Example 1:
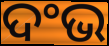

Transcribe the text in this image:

ଦଂଭ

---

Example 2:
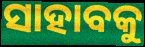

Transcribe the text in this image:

ସାହାବକୁ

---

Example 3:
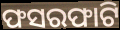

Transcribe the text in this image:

ଫସରଫାଟି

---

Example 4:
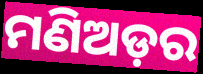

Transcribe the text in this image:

ମଣିଅଡ଼ର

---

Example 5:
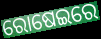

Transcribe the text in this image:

ରୋଷେଇରେ